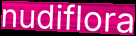
nudiflora